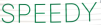
SPEEDY